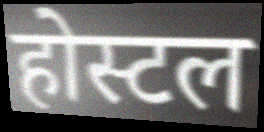
होस्टल